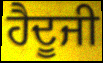
ਹੈਦੂਜੀ